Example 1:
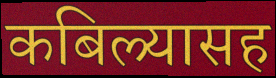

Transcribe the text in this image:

कबिल्यासह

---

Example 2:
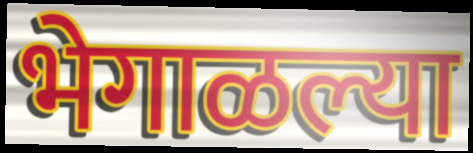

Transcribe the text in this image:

भेगाळल्या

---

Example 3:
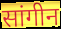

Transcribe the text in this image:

सांगीन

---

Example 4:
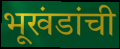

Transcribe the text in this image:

भूखंडांची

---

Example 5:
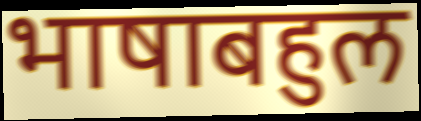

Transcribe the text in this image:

भाषाबहुल